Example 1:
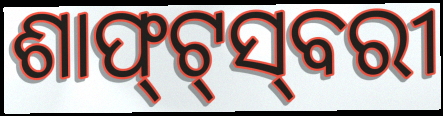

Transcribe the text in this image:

ଶାଫ୍‍ଟ୍‍ସ୍‍ବରୀ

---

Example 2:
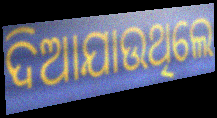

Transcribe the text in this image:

ଦିଆଯାଉଥିଲେ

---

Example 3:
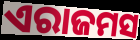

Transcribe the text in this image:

ଏରାଜମସ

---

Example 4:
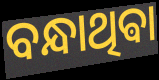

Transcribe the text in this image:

ବନ୍ଧାଥିଵା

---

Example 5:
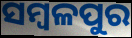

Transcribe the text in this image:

ସମ୍ବଳପୁର